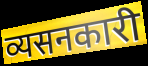
व्यसनकारी